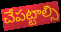
చేపట్టాల్సి